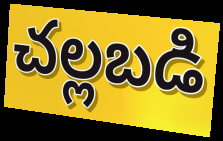
చల్లబడి